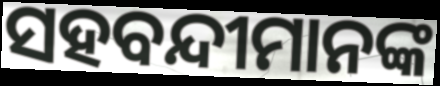
ସହବନ୍ଦୀମାନଙ୍କ